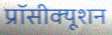
प्रॉसीक्यूशन